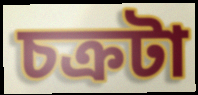
চক্রটা